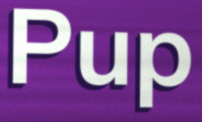
Pup